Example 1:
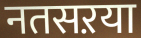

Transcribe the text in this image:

नतसऱया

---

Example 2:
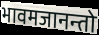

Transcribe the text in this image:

भावमजानन्तो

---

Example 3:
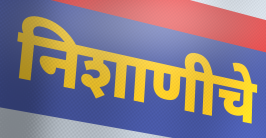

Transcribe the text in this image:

निशाणीचे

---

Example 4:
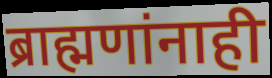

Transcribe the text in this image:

ब्राह्मणांनाही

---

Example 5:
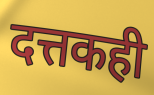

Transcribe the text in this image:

दत्तकही